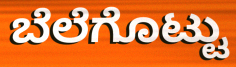
ಬೆಲೆಗೊಟ್ಟು